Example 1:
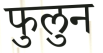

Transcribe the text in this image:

फुलुन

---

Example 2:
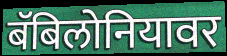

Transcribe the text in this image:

बॅबिलोनियावर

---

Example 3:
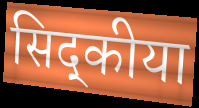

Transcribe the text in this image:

सिद्‌कीया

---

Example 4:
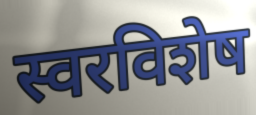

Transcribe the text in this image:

स्वरविशेष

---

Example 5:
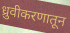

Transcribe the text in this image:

ध्रुवीकरणातून